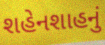
શહેનશાહનું